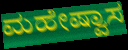
ಮಹೇಷ್ವಾಸ